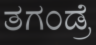
ತಗಂಡ್ರೆ